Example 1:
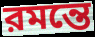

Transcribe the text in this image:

রমন্তে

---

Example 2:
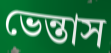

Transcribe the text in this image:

ভেন্তাস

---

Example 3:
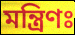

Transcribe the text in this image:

মন্ত্রিণঃ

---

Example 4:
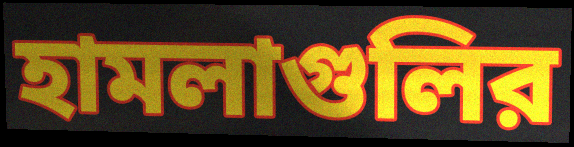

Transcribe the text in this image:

হামলাগুলির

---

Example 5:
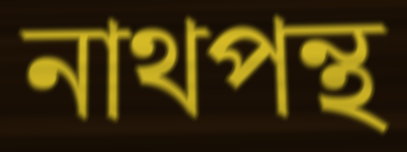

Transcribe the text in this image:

নাথপন্থ